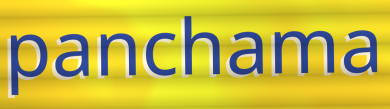
panchama